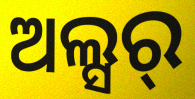
ଅଲ୍ସର୍